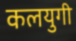
कलयुगी